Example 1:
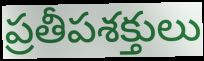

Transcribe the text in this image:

ప్రతీపశక్తులు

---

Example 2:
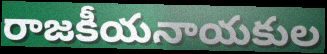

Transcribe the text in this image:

రాజకీయనాయకుల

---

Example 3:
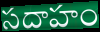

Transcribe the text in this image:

సదాహం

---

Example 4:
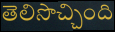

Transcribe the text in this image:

తెలిసొచ్చింది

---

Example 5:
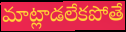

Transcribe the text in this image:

మాట్లాడలేకపోతే